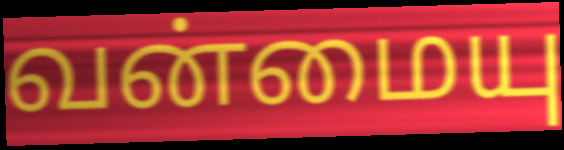
வன்மையு